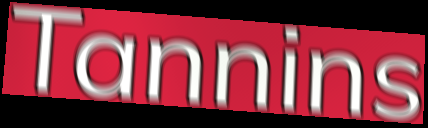
Tannins